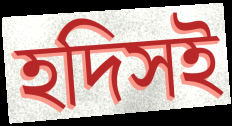
হদিসই